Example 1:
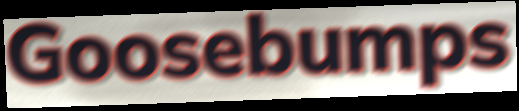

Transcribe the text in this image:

Goosebumps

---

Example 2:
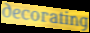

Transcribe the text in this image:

decorating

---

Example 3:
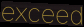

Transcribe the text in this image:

exceed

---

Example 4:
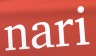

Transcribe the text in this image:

nari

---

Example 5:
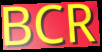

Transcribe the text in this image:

BCR